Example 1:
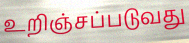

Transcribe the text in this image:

உறிஞ்சப்படுவது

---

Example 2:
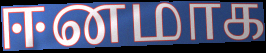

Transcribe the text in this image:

ஈனமாக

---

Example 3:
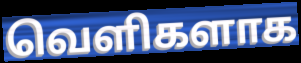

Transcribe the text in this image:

வெளிகளாக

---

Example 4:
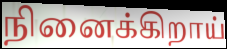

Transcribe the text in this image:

நினைக்கிறாய்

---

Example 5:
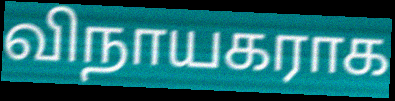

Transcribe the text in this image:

விநாயகராக